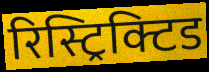
रिस्ट्रिक्टिड